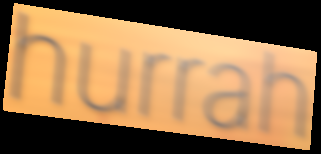
hurrah